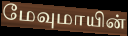
மேவுமாயின்